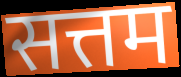
सत्तम